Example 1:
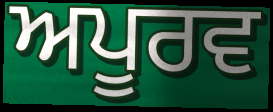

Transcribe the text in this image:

ਅਪੂਰਵ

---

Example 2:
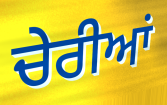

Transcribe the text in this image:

ਚੇਰੀਆਂ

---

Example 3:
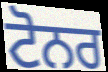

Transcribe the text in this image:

ਟੋਨਰ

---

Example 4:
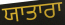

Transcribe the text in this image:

ਯਾਤਾਰਾ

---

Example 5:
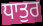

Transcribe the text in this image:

ਧਾਤੁਰ